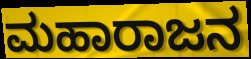
ಮಹಾರಾಜನ